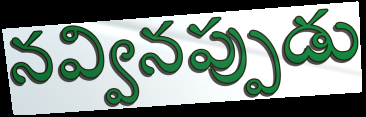
నవ్వినప్పుడు